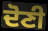
ਦੋਣੀ